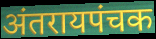
अंतरायपंचक